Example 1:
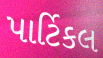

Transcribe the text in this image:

પાર્ટિકલ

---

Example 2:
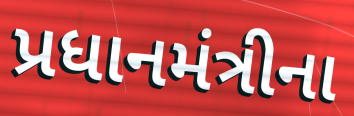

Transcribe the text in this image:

પ્રધાનમંત્રીના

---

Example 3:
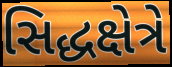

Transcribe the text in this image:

સિદ્ધક્ષેત્રે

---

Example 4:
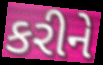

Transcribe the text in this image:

કરીને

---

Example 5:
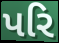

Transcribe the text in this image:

પરિ